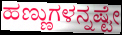
ಹಣ್ಣುಗಳನ್ನಷ್ಟೇ